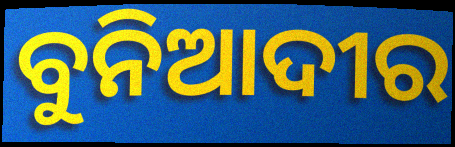
ବୁନିଆଦୀର